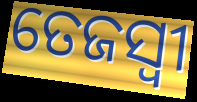
ତେଜସ୍ବୀ